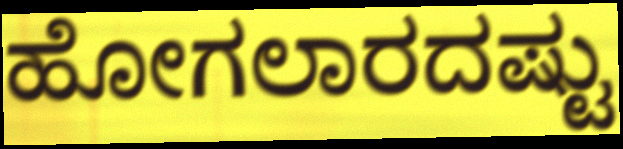
ಹೋಗಲಾರದಷ್ಟು